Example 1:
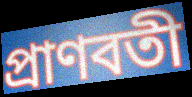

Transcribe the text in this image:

প্রাণবতী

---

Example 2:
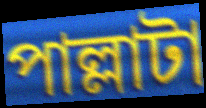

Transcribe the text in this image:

পাল্লাটা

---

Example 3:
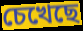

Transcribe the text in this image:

চেখেছে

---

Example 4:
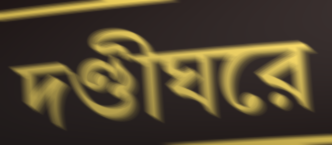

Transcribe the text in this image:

দণ্ডীঘরে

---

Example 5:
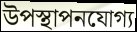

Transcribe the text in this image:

উপস্থাপনযোগ্য